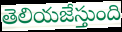
తెలియజేస్తుంది